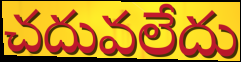
చదువలేదు